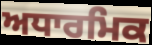
ਅਧਾਰਮਿਕ